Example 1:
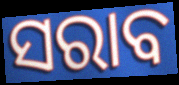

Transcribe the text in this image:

ସରାବ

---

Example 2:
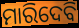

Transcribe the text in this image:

ମାରିଦେବି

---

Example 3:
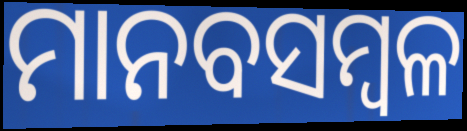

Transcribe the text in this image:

ମାନବସମ୍ବଳ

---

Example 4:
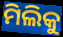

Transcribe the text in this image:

ମିଲିକୁ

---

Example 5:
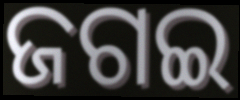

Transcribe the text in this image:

ଜଗଇ